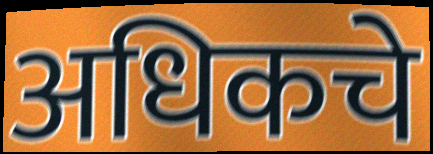
अधिकचे